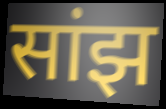
सांझ